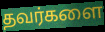
தவர்களை